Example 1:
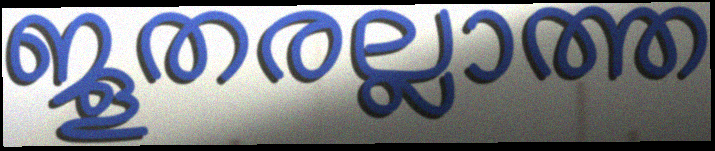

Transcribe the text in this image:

ജൂതരല്ലാത്ത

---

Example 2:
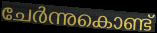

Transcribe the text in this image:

ചേർന്നുകൊണ്ട്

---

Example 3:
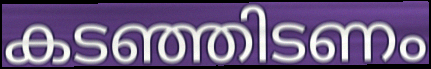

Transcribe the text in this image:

കടഞ്ഞിടണം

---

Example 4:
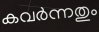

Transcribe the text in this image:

കവർന്നതും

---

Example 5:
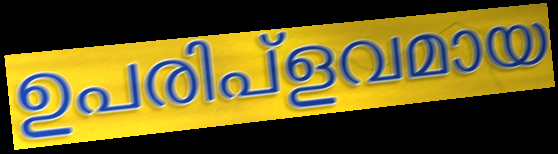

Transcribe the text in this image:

ഉപരിപ്ളവമായ